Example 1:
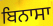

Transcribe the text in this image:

ਬਿਨਾਸਾ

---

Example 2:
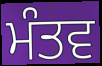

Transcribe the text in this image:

ਮੰਤਵ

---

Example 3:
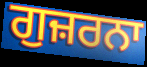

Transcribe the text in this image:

ਗੁਜ਼ਰਨਾ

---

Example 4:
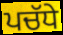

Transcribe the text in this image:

ਪਚੱਧੇ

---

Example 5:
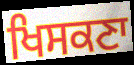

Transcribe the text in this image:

ਖਿਸਕਣਾ